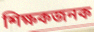
শিক্ষকজনক